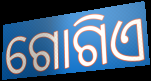
ଗୋଗିଏ